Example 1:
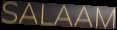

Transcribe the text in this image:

SALAAM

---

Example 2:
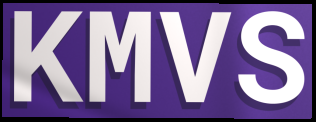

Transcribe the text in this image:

KMVS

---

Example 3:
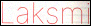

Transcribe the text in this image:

Laksmi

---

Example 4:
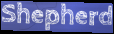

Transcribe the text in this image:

Shepherd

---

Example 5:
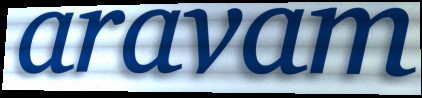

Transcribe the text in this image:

aravam